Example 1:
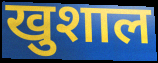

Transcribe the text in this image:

खुशाल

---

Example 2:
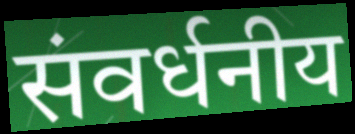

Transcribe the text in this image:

संवर्धनीय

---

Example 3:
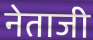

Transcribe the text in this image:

नेताजी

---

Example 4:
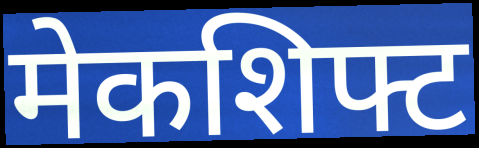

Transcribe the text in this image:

मेकशिफ्ट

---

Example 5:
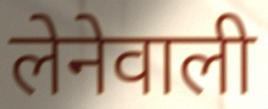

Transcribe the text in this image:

लेनेवाली